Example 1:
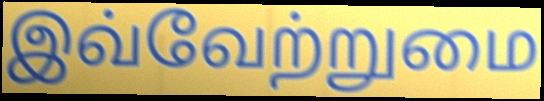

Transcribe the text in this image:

இவ்வேற்றுமை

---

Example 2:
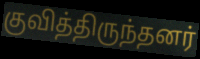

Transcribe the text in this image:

குவித்திருந்தனர்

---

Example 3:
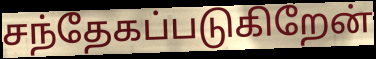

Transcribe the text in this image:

சந்தேகப்படுகிறேன்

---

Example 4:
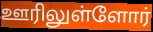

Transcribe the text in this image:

ஊரிலுள்ளோர்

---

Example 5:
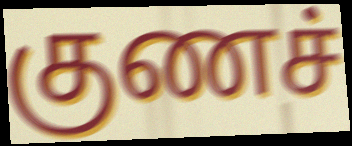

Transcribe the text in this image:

குணச்